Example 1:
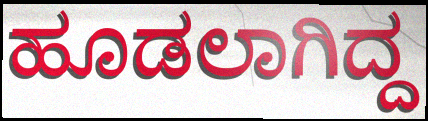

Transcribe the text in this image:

ಹೂಡಲಾಗಿದ್ದ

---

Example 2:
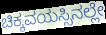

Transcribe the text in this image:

ಚಿಕ್ಕವಯಸ್ಸಿನಲ್ಲೇ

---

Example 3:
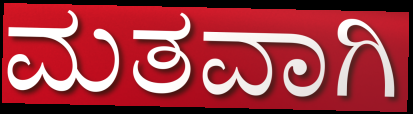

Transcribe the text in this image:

ಮತವಾಗಿ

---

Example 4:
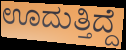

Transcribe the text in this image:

ಊದುತ್ತಿದ್ದೆ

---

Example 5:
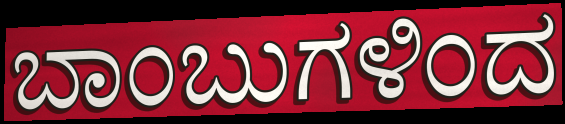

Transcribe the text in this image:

ಬಾಂಬುಗಳಿಂದ